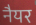
नैयर